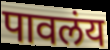
पावलंय